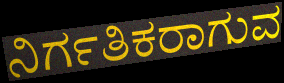
ನಿರ್ಗತಿಕರಾಗುವ